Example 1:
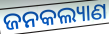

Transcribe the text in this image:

ଜନକଲ୍ୟାଣ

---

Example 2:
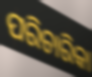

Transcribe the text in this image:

ପରିଚାରିକା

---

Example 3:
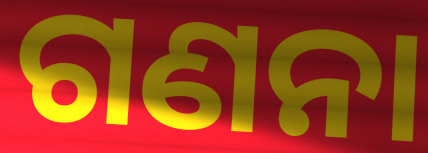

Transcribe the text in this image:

ଗଣନା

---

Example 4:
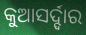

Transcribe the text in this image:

କୁଆସର୍ଦ୍ଦାର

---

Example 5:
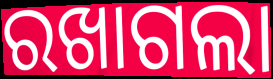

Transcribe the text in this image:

ରଖାଗଲା